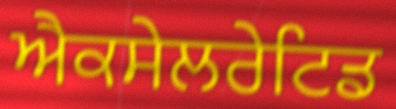
ਐਕਸੇਲਰੇਟਿਡ